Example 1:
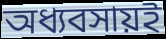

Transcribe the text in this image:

অধ্যবসায়ই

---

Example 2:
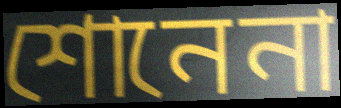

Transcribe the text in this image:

শোনেনা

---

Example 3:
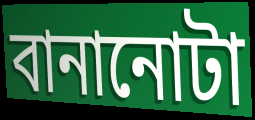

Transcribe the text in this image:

বানানোটা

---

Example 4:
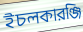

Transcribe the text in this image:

ইচলকারঞ্জি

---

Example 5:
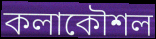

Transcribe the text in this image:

কলাকৌশল